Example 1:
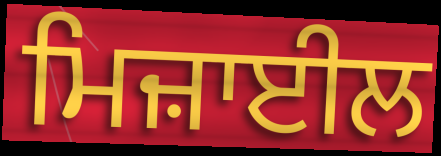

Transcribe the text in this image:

ਮਿਜ਼ਾਈਲ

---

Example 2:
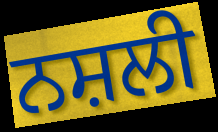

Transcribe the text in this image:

ਨਸ਼ਲੀ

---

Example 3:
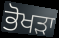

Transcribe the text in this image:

ਭੋਖੜਾ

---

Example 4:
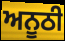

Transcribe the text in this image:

ਅਨੂਠੀ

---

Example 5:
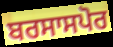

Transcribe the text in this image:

ਬਰਸਾਸਪੋਰ